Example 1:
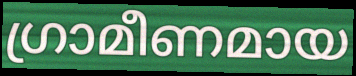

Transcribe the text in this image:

ഗ്രാമീണമായ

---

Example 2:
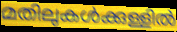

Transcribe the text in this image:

മതിലുകൾക്കുള്ളിൽ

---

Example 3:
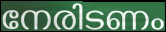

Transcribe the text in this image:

നേരിടണം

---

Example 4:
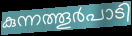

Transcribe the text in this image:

കുന്നത്തൂർപാടി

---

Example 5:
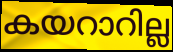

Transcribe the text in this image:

കയറാറില്ല